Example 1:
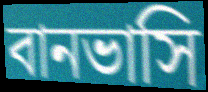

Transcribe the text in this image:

বানভাসি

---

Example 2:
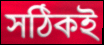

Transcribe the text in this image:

সঠিকই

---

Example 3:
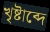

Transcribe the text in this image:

খৃষ্টাব্দে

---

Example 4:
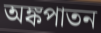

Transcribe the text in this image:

অঙ্কপাতন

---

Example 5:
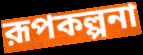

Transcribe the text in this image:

রূপকল্পনা